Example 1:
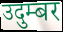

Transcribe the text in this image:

उदुम्बर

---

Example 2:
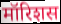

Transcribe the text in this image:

मॉरिशस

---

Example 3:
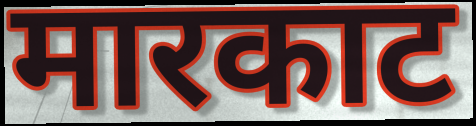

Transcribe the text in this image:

मारकाट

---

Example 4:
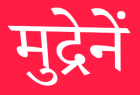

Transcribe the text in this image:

मुद्रेनें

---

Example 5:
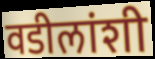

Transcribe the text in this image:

वडीलांशी